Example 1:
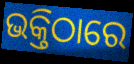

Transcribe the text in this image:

ଭକ୍ତିଠାରେ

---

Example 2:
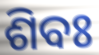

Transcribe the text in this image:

ଶିବଃ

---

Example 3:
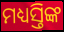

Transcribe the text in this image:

ମଧ୍ୟସ୍ତିଙ୍କ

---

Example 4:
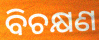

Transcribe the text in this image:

ବିଚକ୍ଷଣ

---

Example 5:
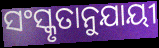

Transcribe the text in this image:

ସଂସ୍କୃତାନୁଯାୟୀ